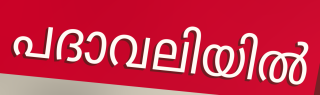
പദാവലിയിൽ